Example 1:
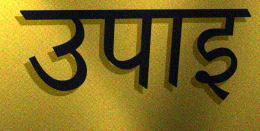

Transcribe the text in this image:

उपाइ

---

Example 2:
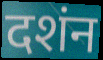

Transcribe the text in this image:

दशंन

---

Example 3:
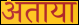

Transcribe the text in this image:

अताया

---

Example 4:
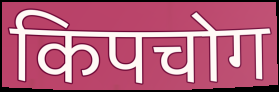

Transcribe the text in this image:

किपचोग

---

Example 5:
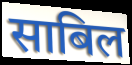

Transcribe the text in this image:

साबिल